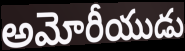
అమోరీయుడు